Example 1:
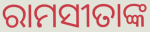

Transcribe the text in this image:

ରାମସୀତାଙ୍କ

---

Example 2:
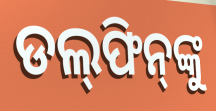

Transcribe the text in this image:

ଡଲ୍‌ଫିନ୍‌ଙ୍କୁ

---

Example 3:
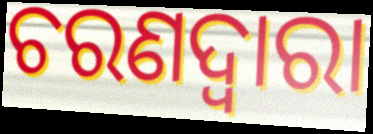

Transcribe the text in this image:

ଚରଣଦ୍ୱାରା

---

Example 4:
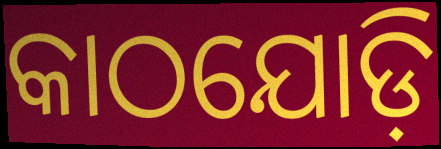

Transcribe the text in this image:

କାଠଯୋଡ଼ି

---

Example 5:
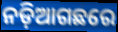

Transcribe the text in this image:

ନଡ଼ିଆଗଛରେ